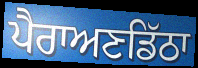
ਪੈਰਾਅਣਡਿੱਠਾ